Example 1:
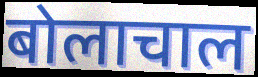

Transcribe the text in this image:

बोलाचाल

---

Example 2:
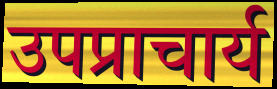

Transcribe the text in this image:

उपप्राचार्य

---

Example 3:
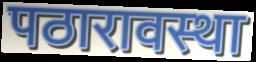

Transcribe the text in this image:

पठारावस्था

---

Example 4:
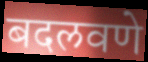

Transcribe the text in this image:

बदलवणे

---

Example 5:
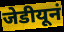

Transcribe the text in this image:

जेडीयूनं